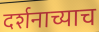
दर्शनाच्याच